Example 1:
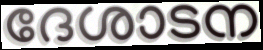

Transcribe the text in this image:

ദേശാടന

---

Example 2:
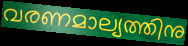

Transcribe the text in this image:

വരണമാല്യത്തിനു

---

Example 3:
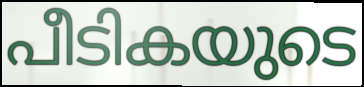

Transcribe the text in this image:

പീടികയുടെ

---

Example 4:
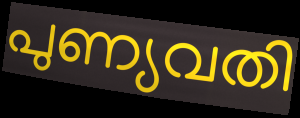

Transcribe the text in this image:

പുണ്യവതി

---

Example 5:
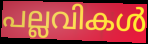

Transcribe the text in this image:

പല്ലവികൾ